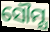
ସୌମ୍ଯ